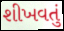
શીખવતું